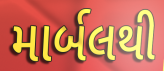
માર્બલથી